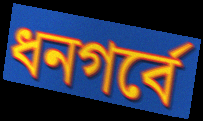
ধনগর্বে